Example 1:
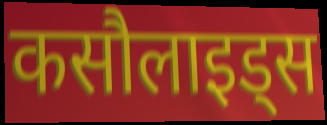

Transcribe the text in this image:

कसौलाइड्स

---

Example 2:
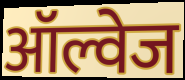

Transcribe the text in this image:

ऑल्वेज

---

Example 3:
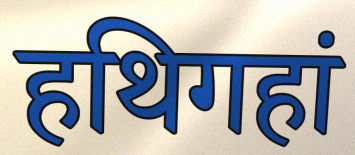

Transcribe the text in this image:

हथिगहां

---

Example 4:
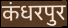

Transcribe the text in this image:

कंधरपुर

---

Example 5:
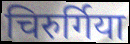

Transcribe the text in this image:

चिरुर्गिया